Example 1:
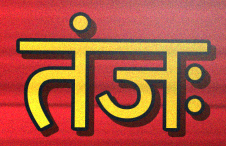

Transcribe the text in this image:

तंजः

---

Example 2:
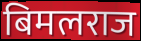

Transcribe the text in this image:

बिमलराज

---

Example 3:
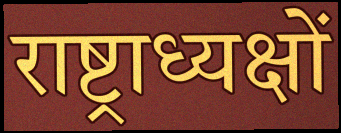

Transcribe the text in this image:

राष्ट्राध्यक्षों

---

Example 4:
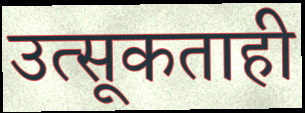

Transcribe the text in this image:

उत्सूकताही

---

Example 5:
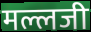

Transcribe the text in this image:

मल्लजी